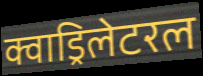
क्वाड्रिलेटरल